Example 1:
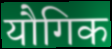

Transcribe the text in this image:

यौगिक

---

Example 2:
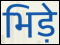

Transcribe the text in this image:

भिड़े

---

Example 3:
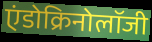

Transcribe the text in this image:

एंडोक्रिनोलॉजी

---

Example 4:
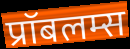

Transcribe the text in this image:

प्रॉबलम्स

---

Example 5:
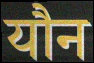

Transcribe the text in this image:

यौन